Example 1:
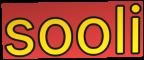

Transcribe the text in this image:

sooli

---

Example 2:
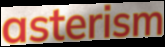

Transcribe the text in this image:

asterism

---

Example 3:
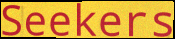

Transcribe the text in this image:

Seekers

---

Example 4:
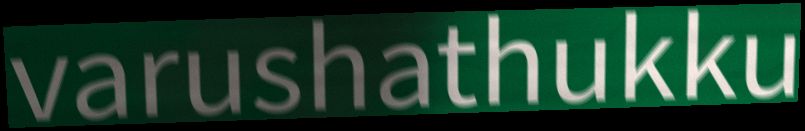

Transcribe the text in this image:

varushathukku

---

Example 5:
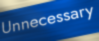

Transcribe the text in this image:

Unnecessary